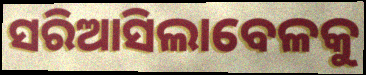
ସରିଆସିଲାବେଳକୁ